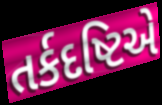
તર્કદષ્ટિએ